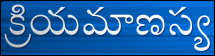
క్రియమాణస్య